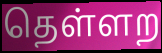
தெள்ளற